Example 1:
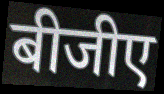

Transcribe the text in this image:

बीजीए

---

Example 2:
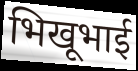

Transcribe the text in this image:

भिखूभाई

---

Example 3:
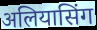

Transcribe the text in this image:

अलियासिंग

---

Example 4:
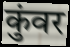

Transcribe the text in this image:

कुंवर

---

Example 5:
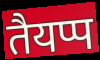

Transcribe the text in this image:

तैयप्प